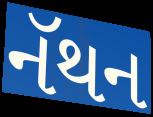
નૅથન